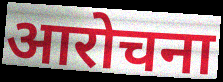
आरोचना